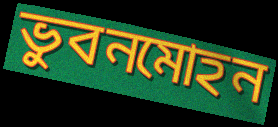
ভুবনমোহন